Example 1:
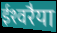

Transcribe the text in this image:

ईश्वरैया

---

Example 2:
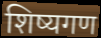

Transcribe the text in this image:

शिष्यगण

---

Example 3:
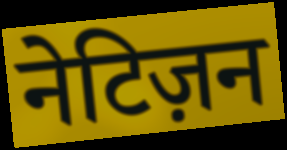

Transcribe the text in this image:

नेटिज़न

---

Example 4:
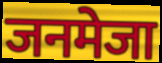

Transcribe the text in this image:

जनमेजा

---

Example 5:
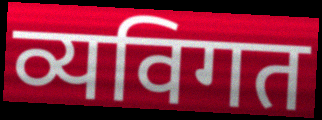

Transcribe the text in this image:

व्यविगत